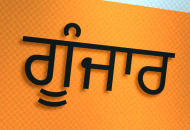
ਗੂੰਜਾਰ